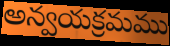
అన్వయక్రమము